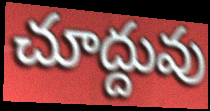
చూద్దువు